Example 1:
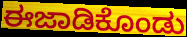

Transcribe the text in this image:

ಈಜಾಡಿಕೊಂಡು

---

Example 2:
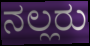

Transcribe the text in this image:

ನಲ್ಲರು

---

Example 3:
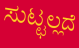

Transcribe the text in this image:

ಸುಟ್ಟಲ್ಲದೆ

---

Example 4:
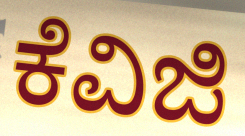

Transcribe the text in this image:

ಕೆವಿಜಿ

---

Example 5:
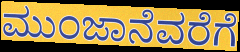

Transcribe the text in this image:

ಮುಂಜಾನೆವರೆಗೆ